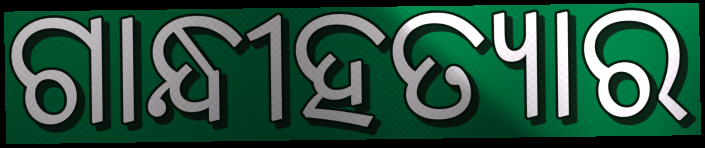
ଗାନ୍ଧୀହତ୍ୟାର